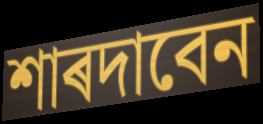
শাৰদাবেন